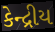
કેન્દ્રીય